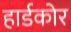
हार्डकोर